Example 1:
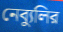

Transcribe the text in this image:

নেব্যুলির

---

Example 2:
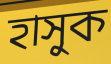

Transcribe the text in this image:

হাসুক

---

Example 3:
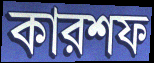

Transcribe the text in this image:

কারশফ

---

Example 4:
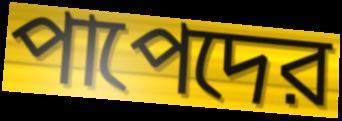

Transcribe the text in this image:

পাপেদের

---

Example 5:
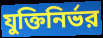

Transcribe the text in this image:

যুক্তিনির্ভর